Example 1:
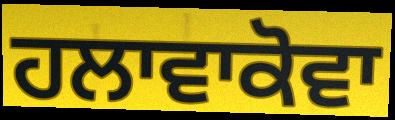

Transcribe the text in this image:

ਹਲਾਵਾਕੋਵਾ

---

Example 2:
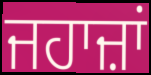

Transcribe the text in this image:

ਜਹਾਜ਼ਾਂ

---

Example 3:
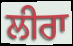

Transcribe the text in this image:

ਲੀਰਾ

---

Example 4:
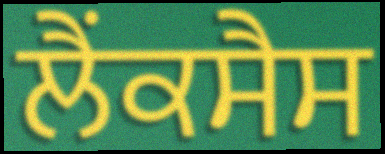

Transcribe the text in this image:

ਲੈਂਕਸੈਸ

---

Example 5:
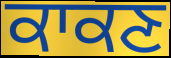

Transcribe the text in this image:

ਕਾਕਣ